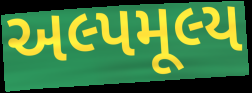
અલ્પમૂલ્ય